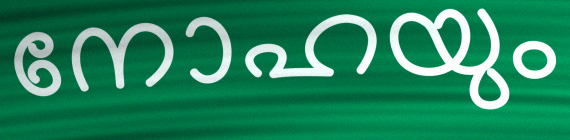
നോഹയും